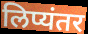
लिप्यंतर